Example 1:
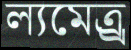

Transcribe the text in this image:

ল্যমেত্র্র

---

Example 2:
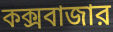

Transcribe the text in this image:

কক্সবাজার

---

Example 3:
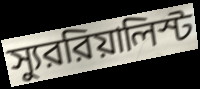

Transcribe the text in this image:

স্যুররিয়ালিস্ট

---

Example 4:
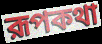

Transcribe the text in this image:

রূপকথা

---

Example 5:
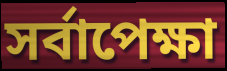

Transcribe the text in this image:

সর্বাপেক্ষা